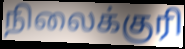
நிலைக்குரி